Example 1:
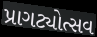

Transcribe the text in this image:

પ્રાગટ્યોત્સવ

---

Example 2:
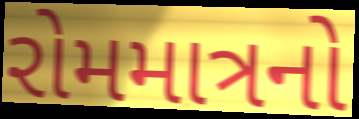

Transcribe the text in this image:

રોમમાત્રનો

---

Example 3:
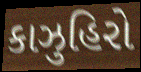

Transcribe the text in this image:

કાઝુહિરો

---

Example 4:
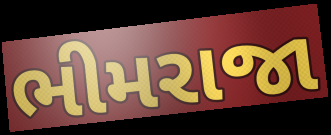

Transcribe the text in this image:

ભીમરાજા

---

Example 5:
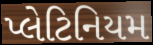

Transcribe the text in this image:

પ્લેટિનિયમ